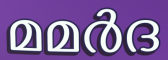
മമർദ